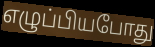
எழுப்பியபோது